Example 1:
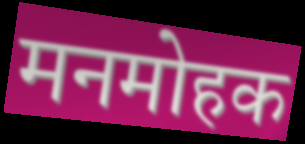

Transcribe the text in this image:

मनमोहक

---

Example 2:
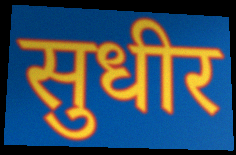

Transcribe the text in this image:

सुधीर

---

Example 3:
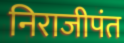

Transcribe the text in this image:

निराजीपंत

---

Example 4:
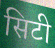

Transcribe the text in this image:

सिटी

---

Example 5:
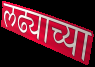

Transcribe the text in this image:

लढ्याच्या